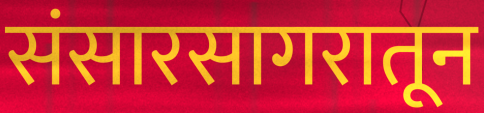
संसारसागरातून